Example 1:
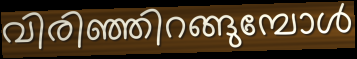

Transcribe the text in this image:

വിരിഞ്ഞിറങ്ങുമ്പോൾ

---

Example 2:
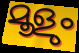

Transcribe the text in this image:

മൂളും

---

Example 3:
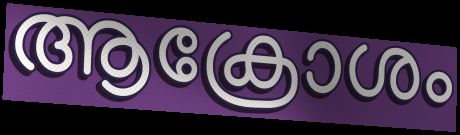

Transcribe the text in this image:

ആക്രോശം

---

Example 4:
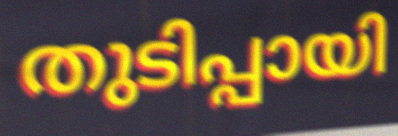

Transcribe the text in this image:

തുടിപ്പായി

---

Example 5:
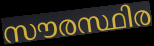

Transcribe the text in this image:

സൗരസ്ഥിര